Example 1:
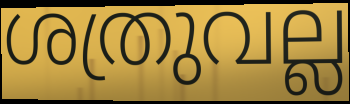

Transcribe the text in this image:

ശത്രുവല്ല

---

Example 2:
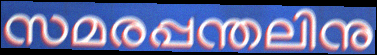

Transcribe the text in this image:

സമരപ്പന്തലിനു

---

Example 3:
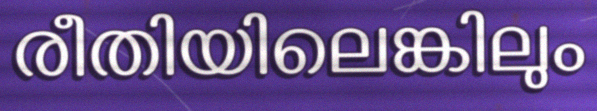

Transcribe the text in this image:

രീതിയിലെങ്കിലും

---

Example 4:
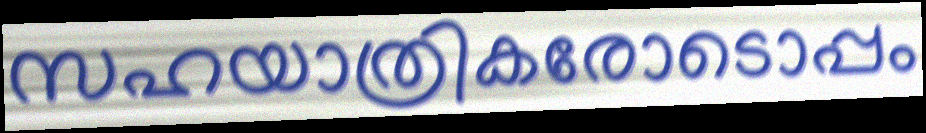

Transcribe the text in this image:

സഹയാത്രികരോടൊപ്പം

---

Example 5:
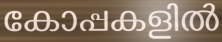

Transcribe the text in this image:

കോപ്പകളിൽ